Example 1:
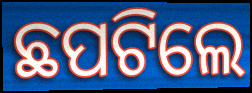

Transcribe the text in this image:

ଛପଟିଲେ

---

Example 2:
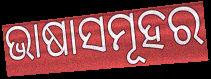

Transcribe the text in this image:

ଭାଷାସମୂହର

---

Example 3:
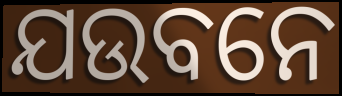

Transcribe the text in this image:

ଯଉବନେ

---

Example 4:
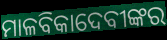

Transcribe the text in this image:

ମାଳବିକାଦେବୀଙ୍କର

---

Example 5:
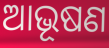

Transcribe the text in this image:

ଆଭୂଷଣ